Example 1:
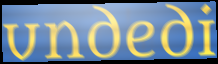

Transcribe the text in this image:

undedi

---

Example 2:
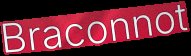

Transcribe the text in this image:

Braconnot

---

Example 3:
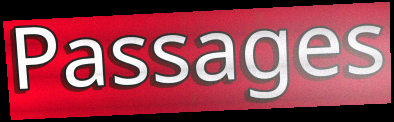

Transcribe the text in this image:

Passages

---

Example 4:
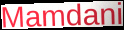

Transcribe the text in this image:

Mamdani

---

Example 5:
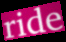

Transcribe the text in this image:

ride